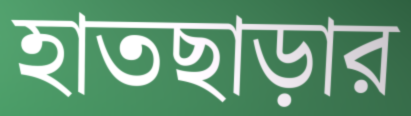
হাতছাড়ার